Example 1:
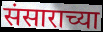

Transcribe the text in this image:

संसाराच्या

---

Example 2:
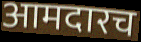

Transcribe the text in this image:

आमदारच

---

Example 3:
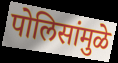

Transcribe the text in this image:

पोलिसांमुळे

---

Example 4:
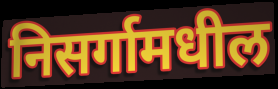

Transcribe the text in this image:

निसर्गामधील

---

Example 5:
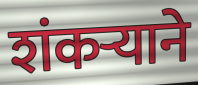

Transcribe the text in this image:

शंकर्‍याने